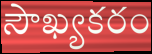
సౌఖ్యకరం